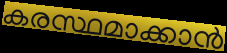
കരസ്ഥമാക്കാൻ